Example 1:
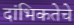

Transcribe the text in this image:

दांभिकतेचे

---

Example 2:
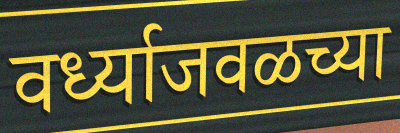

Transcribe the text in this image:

वर्ध्याजवळच्या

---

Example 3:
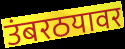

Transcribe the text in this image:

उंबरठयावर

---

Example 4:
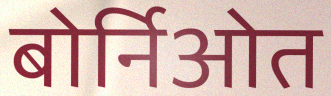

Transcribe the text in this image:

बोर्निओत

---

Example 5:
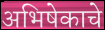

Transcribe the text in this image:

अभिषेकाचे